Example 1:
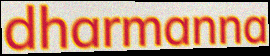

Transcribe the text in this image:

dharmanna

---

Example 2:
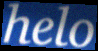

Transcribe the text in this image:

helo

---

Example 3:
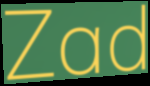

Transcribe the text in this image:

Zad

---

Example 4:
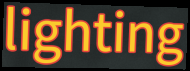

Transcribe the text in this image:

lighting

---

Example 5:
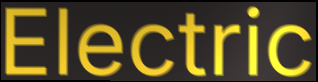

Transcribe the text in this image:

Electric